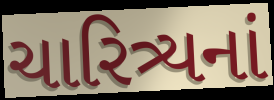
ચારિત્ર્યનાં